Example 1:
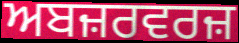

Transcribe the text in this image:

ਅਬਜ਼ਰਵਰਜ਼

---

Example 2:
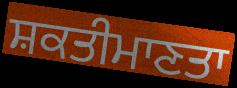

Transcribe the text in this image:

ਸ਼ਕਤੀਮਾਣਤਾ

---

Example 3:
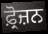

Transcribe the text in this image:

ਫ਼੍ਰੋਜ਼ਨ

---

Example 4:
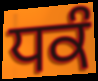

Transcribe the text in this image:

ਧਕੰ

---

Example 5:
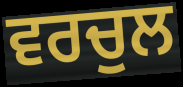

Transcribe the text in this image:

ਵਰਚੁਲ